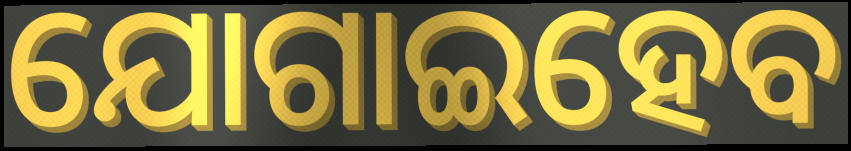
ଯୋଗାଇହେବ